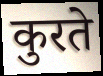
कुरते